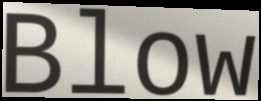
Blow